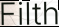
Filth